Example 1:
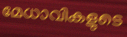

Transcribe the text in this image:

മേധാവികളുടെ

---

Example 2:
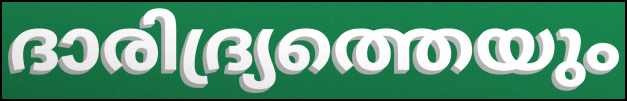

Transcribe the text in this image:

ദാരിദ്ര്യത്തെയും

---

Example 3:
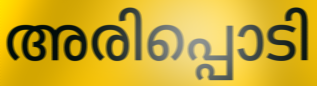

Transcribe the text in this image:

അരിപ്പൊടി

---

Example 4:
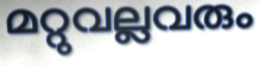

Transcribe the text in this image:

മറ്റുവല്ലവരും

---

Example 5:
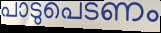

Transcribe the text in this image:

പാടുപെടണം